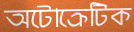
অটোক্রেটিক